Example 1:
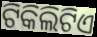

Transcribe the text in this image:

ଟିକିଲିଟିଏ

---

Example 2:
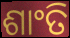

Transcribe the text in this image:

ଶାଂତି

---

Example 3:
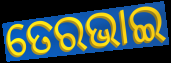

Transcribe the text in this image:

ତେରଭାଇ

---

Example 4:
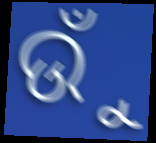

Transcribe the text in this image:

ଉୁଁ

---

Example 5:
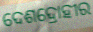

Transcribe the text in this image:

ଦେଶଦ୍ରୋହୀର